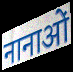
नानाओं